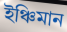
ইঞ্চিমান